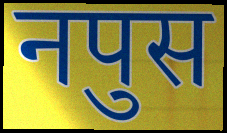
नपुस